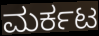
ಮರ್ಕಟ